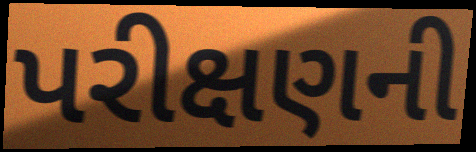
પરીક્ષણની